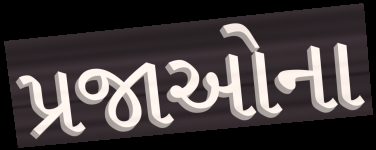
પ્રજાઓના